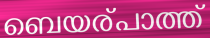
ബെയര്പാത്ത്